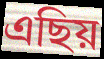
এছিয়